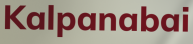
Kalpanabai